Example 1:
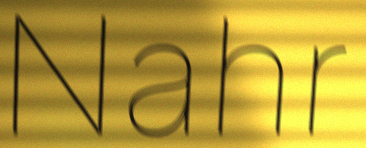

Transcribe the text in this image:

Nahr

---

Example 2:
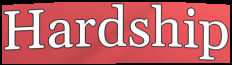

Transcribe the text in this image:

Hardship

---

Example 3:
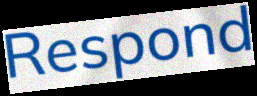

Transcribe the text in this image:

Respond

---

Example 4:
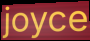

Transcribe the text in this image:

joyce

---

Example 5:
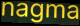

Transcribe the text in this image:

nagma